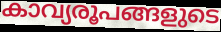
കാവ്യരൂപങ്ങളുടെ